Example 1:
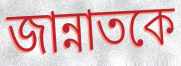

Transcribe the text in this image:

জান্নাতকে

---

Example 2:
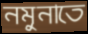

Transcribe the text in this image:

নমুনাতে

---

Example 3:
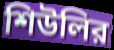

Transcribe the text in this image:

শিউলির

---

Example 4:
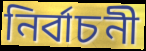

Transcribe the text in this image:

নির্বাচনী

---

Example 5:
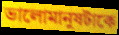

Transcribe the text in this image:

ভালোমানুষটাকে